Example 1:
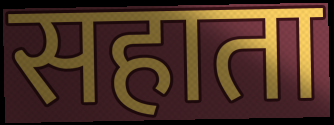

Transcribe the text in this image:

सहाता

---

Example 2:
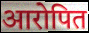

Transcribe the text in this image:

आरोपित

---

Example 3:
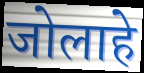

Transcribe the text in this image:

जोलाहे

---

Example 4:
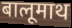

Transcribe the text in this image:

बालूमाथ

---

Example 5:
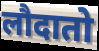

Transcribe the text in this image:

लौदातो